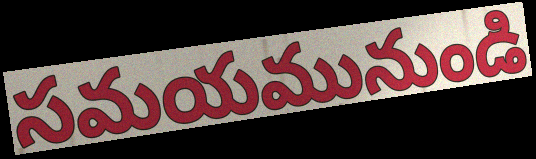
సమయమునుండి